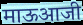
माऊआजी